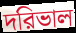
দরিভাল